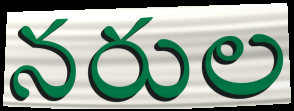
నరుల